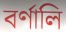
বর্ণালি